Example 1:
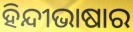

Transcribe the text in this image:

ହିନ୍ଦୀଭାଷାର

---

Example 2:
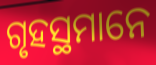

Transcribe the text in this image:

ଗୃହସ୍ଥମାନେ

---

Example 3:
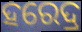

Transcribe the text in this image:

ହରେଦ୍ର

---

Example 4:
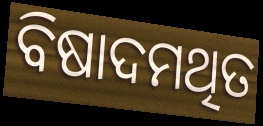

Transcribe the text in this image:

ବିଷାଦମଥିତ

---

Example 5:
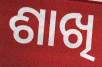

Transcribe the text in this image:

ଶାଖି